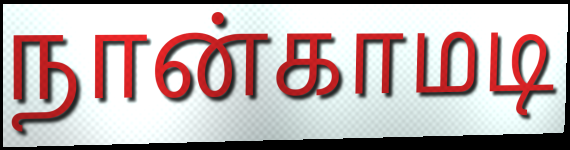
நான்காமடி